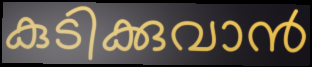
കുടിക്കുവാൻ